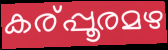
കര്പ്പൂരമഴ